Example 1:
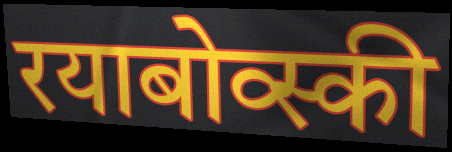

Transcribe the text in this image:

रयाबोव्स्की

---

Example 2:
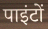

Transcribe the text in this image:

पाइंटों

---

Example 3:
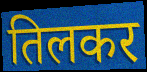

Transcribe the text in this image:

तिलकर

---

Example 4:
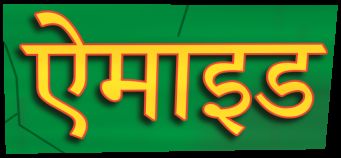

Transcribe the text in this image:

ऐमाइड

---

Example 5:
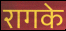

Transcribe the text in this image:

रागके